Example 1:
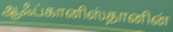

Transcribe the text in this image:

ஆஃப்கானிஸ்தானின்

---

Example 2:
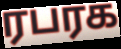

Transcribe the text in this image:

ரபரக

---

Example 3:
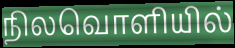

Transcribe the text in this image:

நிலவொளியில்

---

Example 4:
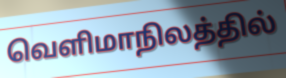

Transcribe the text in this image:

வெளிமாநிலத்தில்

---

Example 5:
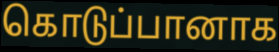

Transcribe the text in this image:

கொடுப்பானாக